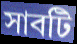
সাবটি